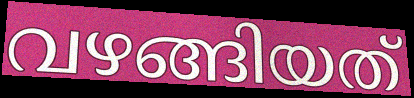
വഴങ്ങിയത്